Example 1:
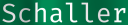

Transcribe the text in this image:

Schaller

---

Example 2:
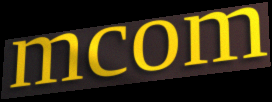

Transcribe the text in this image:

mcom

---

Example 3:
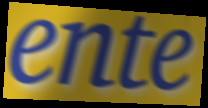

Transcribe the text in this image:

ente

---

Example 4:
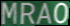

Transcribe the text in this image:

MRAO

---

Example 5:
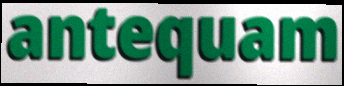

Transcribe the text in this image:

antequam